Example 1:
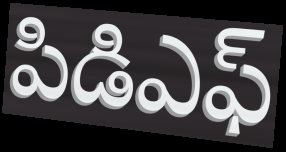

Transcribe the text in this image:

పిడిఎఫ్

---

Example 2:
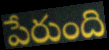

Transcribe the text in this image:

పేరుంది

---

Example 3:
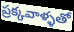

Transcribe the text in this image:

ప్రక్కవాళ్ళతో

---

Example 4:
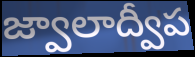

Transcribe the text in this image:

జ్వాలాద్వీప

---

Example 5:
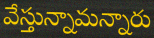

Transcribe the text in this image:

వేస్తున్నామన్నారు